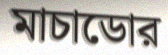
মাচাডোর